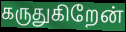
கருதுகிறேன்